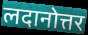
लदानोत्तर